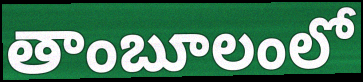
తాంబూలంలో